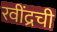
रवींद्रची